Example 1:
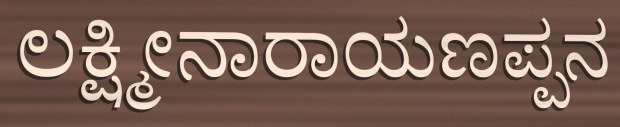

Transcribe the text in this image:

ಲಕ್ಷ್ಮೀನಾರಾಯಣಪ್ಪನ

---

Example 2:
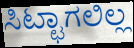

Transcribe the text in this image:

ಸಿಟ್ಟಾಗಲಿಲ್ಲ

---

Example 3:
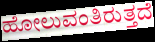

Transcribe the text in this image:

ಹೋಲುವಂತಿರುತ್ತದೆ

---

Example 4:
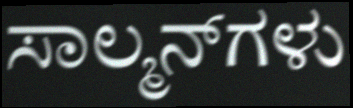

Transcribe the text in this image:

ಸಾಲ್ಮನ್‌ಗಳು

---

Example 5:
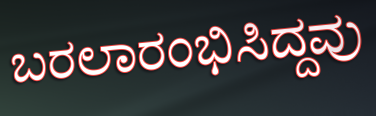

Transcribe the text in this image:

ಬರಲಾರಂಭಿಸಿದ್ದವು